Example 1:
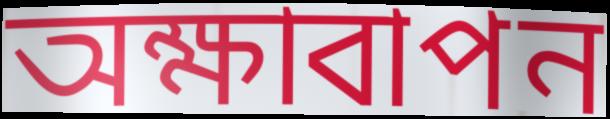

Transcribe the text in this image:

অক্ষাবাপন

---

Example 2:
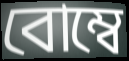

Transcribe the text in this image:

বোম্বে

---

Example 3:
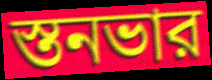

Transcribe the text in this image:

স্তনভার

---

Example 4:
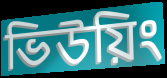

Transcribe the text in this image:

ভিউয়িং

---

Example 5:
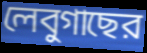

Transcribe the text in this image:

লেবুগাছের